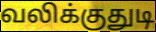
வலிக்குதுடி